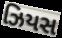
ઝિયસ